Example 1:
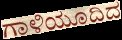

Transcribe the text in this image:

ಗಾಳಿಯೂದಿದ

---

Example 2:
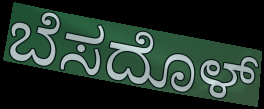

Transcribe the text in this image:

ಬೆಸದೊಳ್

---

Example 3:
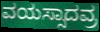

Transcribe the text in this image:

ವಯಸ್ಸಾದವ್ರ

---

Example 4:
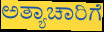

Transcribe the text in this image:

ಅತ್ಯಾಚಾರಿಗೆ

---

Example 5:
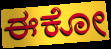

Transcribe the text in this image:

ಈಕೋ